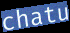
chatu